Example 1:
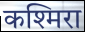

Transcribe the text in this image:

कश्मिरा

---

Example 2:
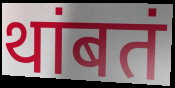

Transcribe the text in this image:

थांबतं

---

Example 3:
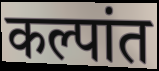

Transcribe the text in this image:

कल्पांत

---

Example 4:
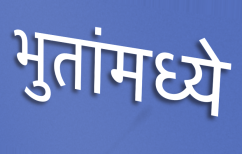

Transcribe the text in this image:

भुतांमध्ये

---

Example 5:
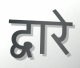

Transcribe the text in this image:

द्वारे